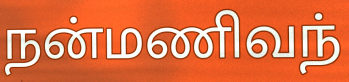
நன்மணிவந்